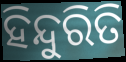
ହିନ୍ଦୁରିତି